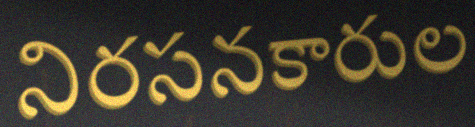
నిరసనకారుల